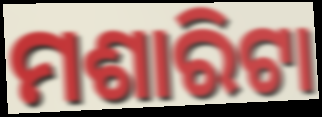
ମଶାରିଟା